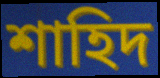
শাহিদ